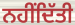
ਨਹੀਂਦਿੱਤੀ